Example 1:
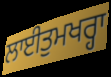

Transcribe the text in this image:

ਲਾਈਤੁਮਖਰ੍ਹਾ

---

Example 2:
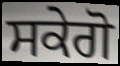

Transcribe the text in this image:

ਸਕੇਗੋ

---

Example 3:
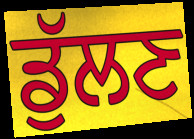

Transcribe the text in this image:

ਡੁੱਲਣ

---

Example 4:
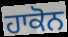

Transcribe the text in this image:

ਹਾਕੋਨ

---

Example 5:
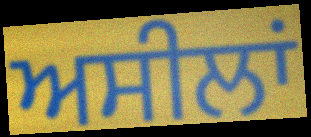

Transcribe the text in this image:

ਅਸੀਲਾਂ